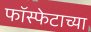
फॉस्फेटाच्या